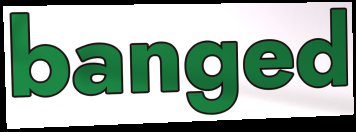
banged